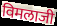
विमलाजी